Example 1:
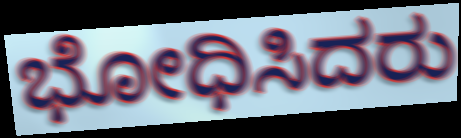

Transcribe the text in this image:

ಭೋಧಿಸಿದರು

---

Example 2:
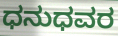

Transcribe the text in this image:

ಧನುಧವರ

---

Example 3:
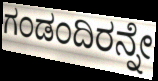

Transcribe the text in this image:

ಗಂಡಂದಿರನ್ನೇ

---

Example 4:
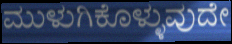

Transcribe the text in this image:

ಮುಳುಗಿಕೊಳ್ಳುವುದೇ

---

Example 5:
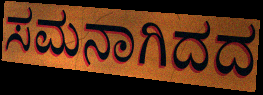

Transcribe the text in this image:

ಸಮನಾಗಿದದ